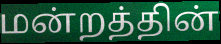
மன்றத்தின்